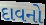
દાવનો